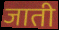
जाती